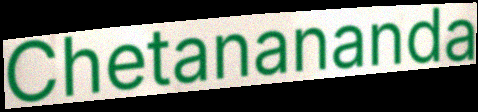
Chetanananda